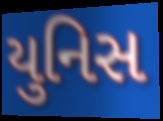
યુનિસ